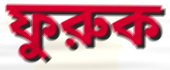
ফুরুক